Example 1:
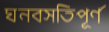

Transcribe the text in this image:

ঘনবসতিপূর্ণ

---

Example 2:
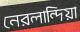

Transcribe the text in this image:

নেরলান্দিয়া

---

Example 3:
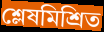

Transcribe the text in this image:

শ্লেষমিশ্রিত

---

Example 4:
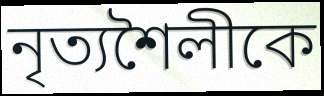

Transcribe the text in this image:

নৃত্যশৈলীকে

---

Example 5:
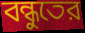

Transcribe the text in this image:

বন্ধুতের